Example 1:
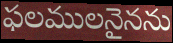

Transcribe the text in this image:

ఫలములనైనను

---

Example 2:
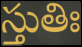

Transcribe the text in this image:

స్తుతిః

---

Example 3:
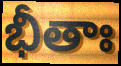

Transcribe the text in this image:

భీతాః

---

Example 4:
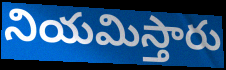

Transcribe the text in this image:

నియమిస్తారు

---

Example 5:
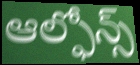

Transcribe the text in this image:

ఆల్ఫోన్స్